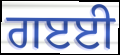
ਗੲਈ